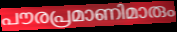
പൗരപ്രമാണിമാരും